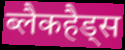
ब्लैकहैड्स